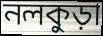
নলকুড়া